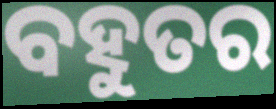
ବହୁତର